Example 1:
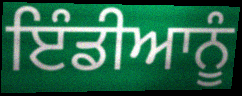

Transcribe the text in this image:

ਇੰਡੀਆਨੂੰ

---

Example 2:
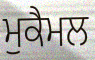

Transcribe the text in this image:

ਮੁਕੈਮਲ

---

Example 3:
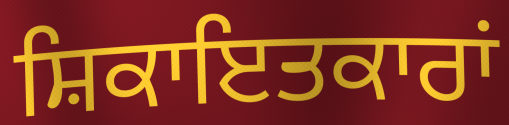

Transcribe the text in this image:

ਸ਼ਿਕਾਇਤਕਾਰਾਂ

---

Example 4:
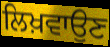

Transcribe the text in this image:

ਲਿਖ਼ਵਾਉਣ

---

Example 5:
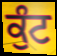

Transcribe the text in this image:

ਕੁੰਟ